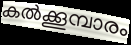
കൽക്കൂമ്പാരം